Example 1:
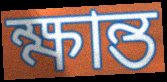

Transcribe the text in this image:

ক্ষান্ত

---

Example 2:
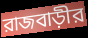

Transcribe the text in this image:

রাজবাড়ীর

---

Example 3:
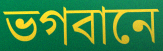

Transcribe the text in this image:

ভগবানে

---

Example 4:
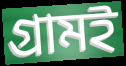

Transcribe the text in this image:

গ্রামই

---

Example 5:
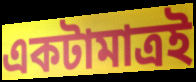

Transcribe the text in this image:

একটামাত্রই